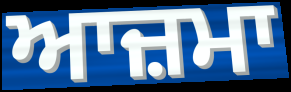
ਆਜ਼ਮਾ